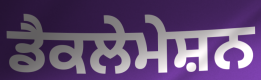
ਡੈਕਲੇਮੇਸ਼ਨ